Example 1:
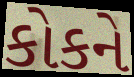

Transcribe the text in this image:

કોકને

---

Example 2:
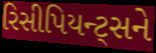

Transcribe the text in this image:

રિસીપિયન્ટ્સને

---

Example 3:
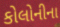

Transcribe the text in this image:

કોલોનીના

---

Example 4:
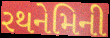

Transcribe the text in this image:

રથનેમિની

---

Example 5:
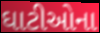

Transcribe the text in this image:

ઘાટીઓના